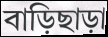
বাড়িছাড়া